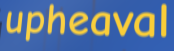
upheaval